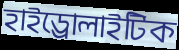
হাইড্রোলাইটিক